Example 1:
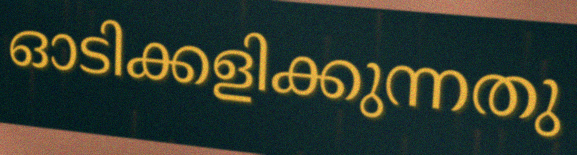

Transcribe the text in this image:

ഓടിക്കളിക്കുന്നതു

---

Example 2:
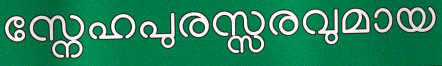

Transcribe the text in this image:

സ്നേഹപുരസ്സരവുമായ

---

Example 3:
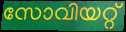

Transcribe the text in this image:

സോവിയറ്റ്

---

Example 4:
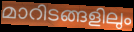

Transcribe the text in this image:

മാറിടങ്ങളിലും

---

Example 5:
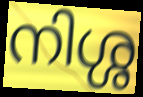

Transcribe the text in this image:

നിശ്ശ